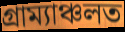
গ্ৰাম্যাঞ্চলত